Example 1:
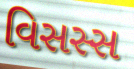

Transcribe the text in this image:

વિસસ્સ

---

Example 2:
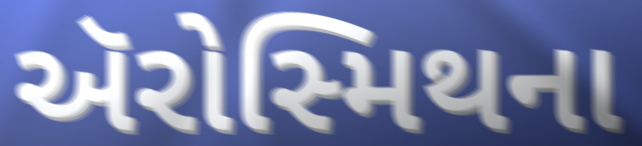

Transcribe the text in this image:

ઍરોસ્મિથના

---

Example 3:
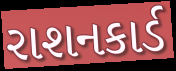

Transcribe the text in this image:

રાશનકાર્ડ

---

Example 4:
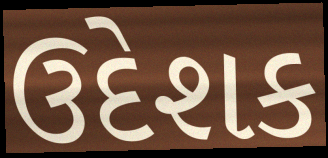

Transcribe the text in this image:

ઉદેશક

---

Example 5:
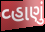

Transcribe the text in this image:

વ્હાણું